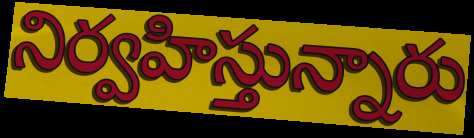
నిర్వహిస్తున్నారు